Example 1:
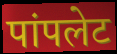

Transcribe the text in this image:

पांपलेट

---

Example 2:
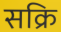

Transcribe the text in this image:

सक्रि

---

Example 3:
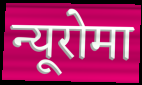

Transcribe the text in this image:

न्यूरोमा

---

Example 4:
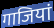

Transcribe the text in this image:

गाजियां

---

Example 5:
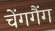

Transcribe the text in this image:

चेंगगैंग